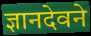
ज्ञानदेवने